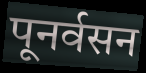
पूनर्वसन